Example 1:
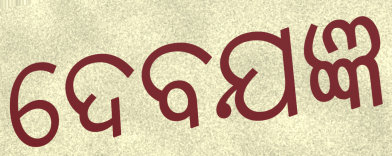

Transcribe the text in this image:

ଦେବଯଜ୍ଞ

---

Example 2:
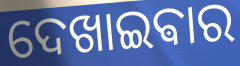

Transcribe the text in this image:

ଦେଖାଇଵାର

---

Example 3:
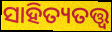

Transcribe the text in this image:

ସାହିତ୍ୟତତ୍ତ୍ୱ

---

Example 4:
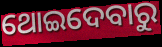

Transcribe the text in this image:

ଥୋଇଦେବାରୁ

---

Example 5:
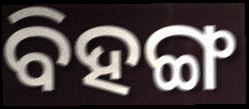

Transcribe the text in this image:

ବିହଙ୍ଗ